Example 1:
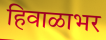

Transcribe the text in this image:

हिवाळाभर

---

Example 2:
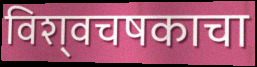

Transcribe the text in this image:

विश्वचषकाचा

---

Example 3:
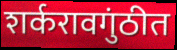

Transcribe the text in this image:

शर्करावगुंठीत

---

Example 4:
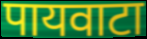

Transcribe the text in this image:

पायवाटा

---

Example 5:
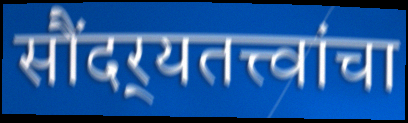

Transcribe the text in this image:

सौंदर्यतत्त्वांचा